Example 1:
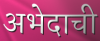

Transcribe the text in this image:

अभेदाची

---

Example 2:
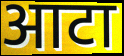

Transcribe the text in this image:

आटा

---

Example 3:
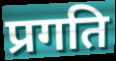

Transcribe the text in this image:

प्रगति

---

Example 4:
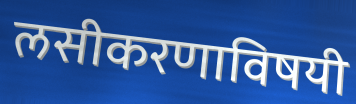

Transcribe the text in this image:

लसीकरणाविषयी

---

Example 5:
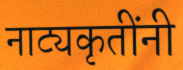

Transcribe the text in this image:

नाट्यकृतींनी